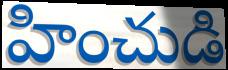
హించుడి